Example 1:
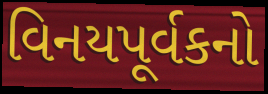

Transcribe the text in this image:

વિનયપૂર્વકનો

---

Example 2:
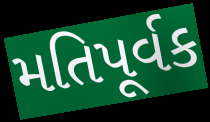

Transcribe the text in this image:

મતિપૂર્વક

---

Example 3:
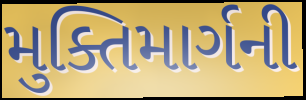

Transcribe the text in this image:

મુક્તિમાર્ગની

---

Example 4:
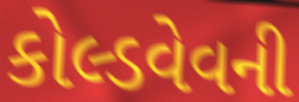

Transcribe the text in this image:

કોલ્ડવેવની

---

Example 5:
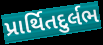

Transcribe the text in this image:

પ્રાર્થિતદુર્લભ